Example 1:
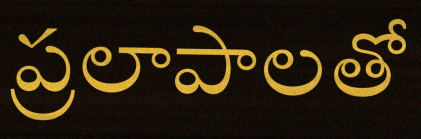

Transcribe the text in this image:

ప్రలాపాలతో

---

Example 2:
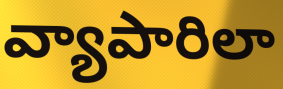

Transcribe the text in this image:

వ్యాపారిలా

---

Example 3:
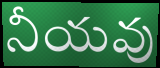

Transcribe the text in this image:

నీయవు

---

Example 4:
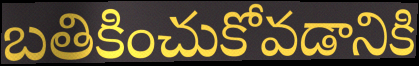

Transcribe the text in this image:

బతికించుకోవడానికి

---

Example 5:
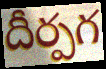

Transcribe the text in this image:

దీర్పగ